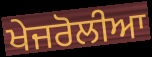
ਖੇਜਰੋਲੀਆ